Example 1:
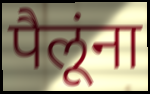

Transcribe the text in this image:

पैलूंना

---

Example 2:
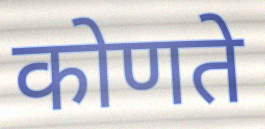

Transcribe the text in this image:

कोणते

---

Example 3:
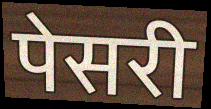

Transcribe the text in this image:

पेसरी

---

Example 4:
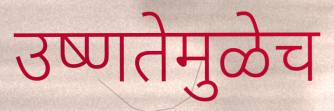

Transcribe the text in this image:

उष्णतेमुळेच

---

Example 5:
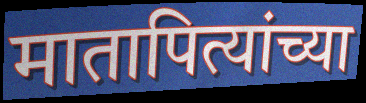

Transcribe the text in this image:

मातापित्यांच्या